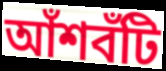
আঁশবঁটি